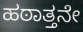
ಹಠಾತ್ತನೇ